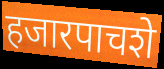
हजारपाचशे